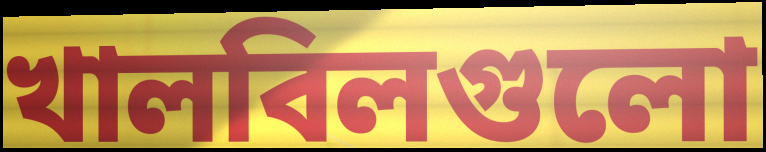
খালবিলগুলো